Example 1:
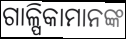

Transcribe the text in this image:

ଗାଳ୍ପିକାମାନଙ୍କ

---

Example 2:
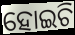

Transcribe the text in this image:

ହୋଇଚି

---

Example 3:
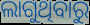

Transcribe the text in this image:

ଲାଗୁଥିବାରୁ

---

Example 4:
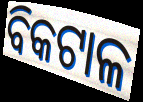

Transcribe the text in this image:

ବିକଟାଳ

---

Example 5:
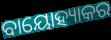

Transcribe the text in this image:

ବାୟୋହ୍ୟାକର